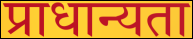
प्राधान्यता